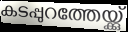
കടപ്പുറത്തേയ്ക്കു്